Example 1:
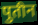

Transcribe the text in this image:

पुतीन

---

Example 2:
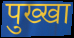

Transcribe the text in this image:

पुख्खा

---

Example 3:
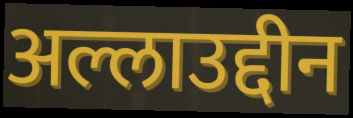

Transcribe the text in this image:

अल्लाउद्दीन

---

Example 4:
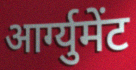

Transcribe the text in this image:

आर्ग्युमेंट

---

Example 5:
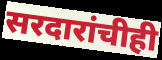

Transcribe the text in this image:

सरदारांचीही